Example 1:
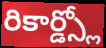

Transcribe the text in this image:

రికార్డ్స్లో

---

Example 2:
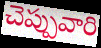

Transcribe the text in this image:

చెప్పువారి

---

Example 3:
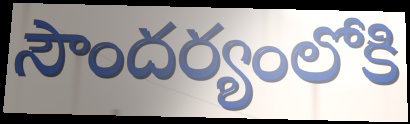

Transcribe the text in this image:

సౌందర్యంలోకి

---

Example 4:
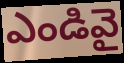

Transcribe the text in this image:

ఎండివై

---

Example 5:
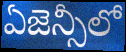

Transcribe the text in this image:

ఏజెన్సీలో